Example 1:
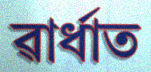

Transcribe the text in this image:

ৱাৰ্ধাত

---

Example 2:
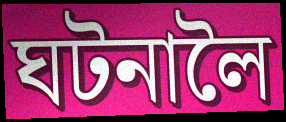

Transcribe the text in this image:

ঘটনালৈ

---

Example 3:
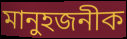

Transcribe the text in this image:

মানুহজনীক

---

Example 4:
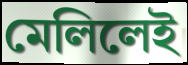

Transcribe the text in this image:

মেলিলেই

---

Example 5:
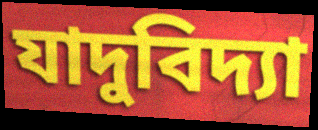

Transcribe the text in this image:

যাদুবিদ্যা